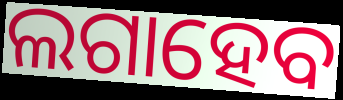
ଲଗାହେବ